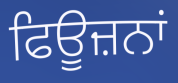
ਫਿਊਜ਼ਨਾਂ